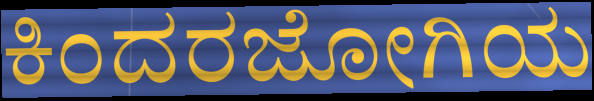
ಕಿಂದರಜೋಗಿಯ